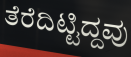
ತೆರೆದಿಟ್ಟಿದ್ದವು